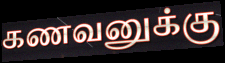
கணவனுக்கு